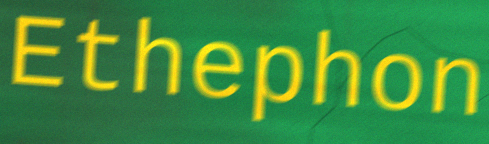
Ethephon